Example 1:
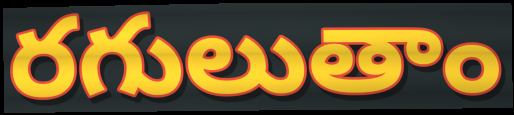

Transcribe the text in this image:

రగులుతాం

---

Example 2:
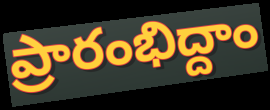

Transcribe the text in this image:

ప్రారంభిద్దాం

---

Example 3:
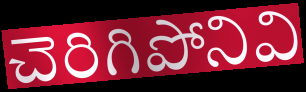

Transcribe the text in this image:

చెరిగిపోనివి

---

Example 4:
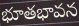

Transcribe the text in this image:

భూతభావన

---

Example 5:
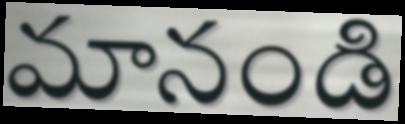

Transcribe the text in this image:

మానండి